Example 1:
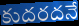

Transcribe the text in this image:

కుదరదనే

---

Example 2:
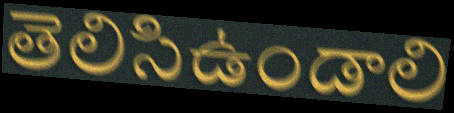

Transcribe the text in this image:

తెలిసిఉండాలి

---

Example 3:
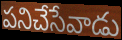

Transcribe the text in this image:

పనిచేసేవాడు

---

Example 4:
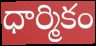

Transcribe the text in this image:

ధార్మికం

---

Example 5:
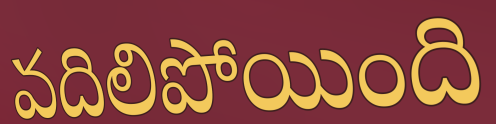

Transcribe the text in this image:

వదిలిపోయింది